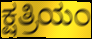
ಕ್ಷತ್ರಿಯಂ